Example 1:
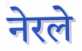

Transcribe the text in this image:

नेरले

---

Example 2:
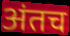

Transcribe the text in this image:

अंतच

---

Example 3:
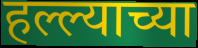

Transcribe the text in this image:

हल्ल्याच्या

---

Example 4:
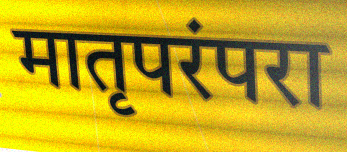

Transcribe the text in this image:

मातृपरंपरा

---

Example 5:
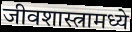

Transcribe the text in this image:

जीवशास्त्रामध्ये